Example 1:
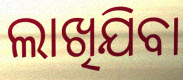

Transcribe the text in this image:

ଲାଖିଯିବା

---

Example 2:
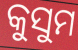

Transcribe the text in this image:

କୁସୁମ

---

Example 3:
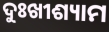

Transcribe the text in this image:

ଦୁଃଖୀଶ୍ୟାମ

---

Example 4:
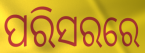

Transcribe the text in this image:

ପରିସରରେ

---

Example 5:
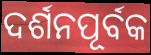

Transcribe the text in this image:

ଦର୍ଶନପୂର୍ବକ